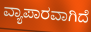
ವ್ಯಾಪಾರವಾಗಿದೆ